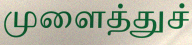
முளைத்துச்